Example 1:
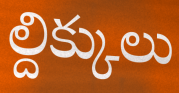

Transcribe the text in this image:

ల్దిక్కులు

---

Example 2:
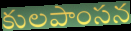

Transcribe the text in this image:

కులపాంసన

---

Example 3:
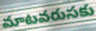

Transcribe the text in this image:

మాటవరుసకు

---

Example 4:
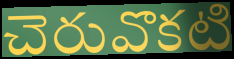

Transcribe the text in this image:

చెరువొకటి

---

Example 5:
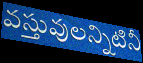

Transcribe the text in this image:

వస్తువులన్నిటినీ